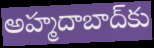
అహ్మదాబాద్‌కు